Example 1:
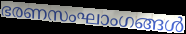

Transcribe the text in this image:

ഭരണസംഘാംഗങ്ങൾ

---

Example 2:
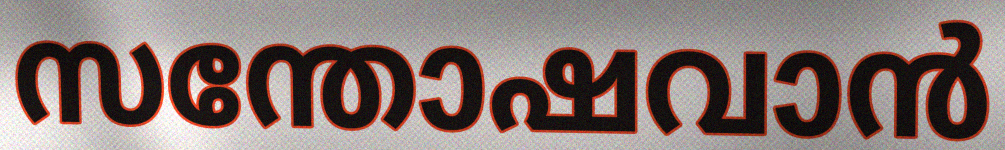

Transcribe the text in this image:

സന്തോഷവാൻ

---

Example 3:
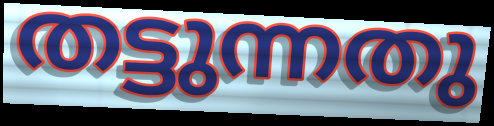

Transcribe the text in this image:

തട്ടുന്നതു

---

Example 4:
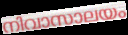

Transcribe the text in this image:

നിവാസാലയം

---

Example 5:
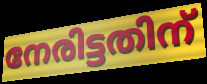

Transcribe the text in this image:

നേരിട്ടതിന്